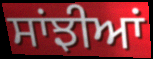
ਸਾਂਝੀਆਂ